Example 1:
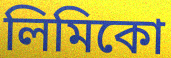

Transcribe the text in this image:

লিমিকো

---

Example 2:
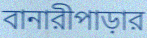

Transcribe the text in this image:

বানারীপাড়ার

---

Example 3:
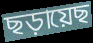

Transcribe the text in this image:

ছড়ায়েছ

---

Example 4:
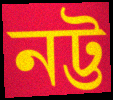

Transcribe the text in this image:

নট্ট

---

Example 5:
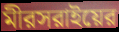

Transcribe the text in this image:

মীরসরাইয়ের